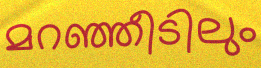
മറഞ്ഞീടിലും